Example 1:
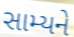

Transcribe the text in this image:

સામ્યને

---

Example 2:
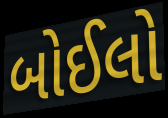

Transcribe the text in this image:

બોઈલો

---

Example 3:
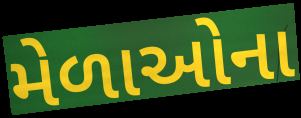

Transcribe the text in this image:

મેળાઓના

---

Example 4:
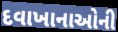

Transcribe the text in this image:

દવાખાનાઓની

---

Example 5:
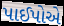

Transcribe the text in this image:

પાઈપોએ